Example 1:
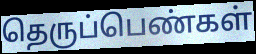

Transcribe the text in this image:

தெருப்பெண்கள்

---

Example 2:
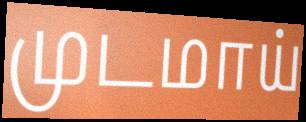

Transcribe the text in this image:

முடமாய்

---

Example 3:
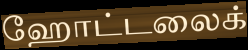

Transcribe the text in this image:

ஹோட்டலைக்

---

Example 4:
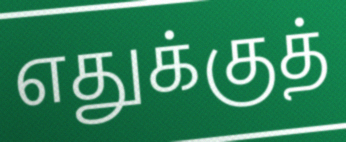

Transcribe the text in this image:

எதுக்குத்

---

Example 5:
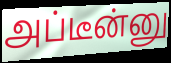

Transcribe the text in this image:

அப்டீன்னு